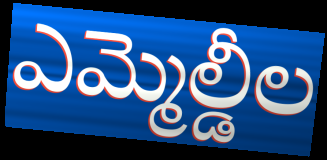
ఎమ్మెల్డీల